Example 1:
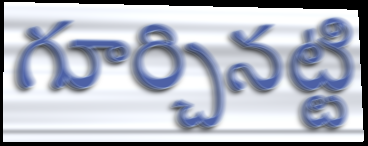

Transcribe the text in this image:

గూర్చినట్టి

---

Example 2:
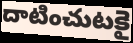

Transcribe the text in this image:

దాటించుటకై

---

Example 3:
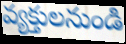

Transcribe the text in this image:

వ్యక్తులనుండి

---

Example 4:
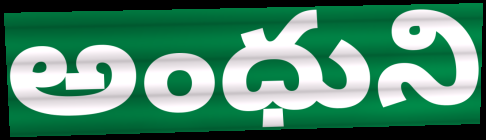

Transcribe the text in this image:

అంధుని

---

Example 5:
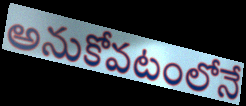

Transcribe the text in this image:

అనుకోవటంలోనే